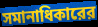
সমানাধিকারের